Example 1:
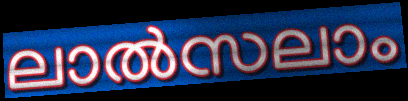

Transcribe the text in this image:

ലാൽസലാം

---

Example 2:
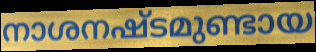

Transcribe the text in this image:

നാശനഷ്ടമുണ്ടായ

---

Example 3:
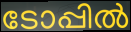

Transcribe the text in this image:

ടോപ്പിൽ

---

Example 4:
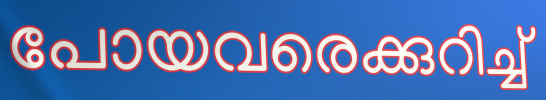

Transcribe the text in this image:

പോയവരെക്കുറിച്ച്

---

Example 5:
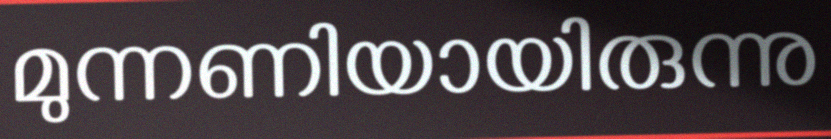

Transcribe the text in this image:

മുന്നണിയായിരുന്നു